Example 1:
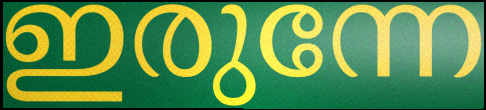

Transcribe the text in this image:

ഇരുന്നേ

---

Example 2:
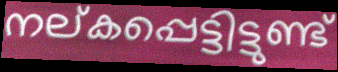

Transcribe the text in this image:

നല്കപ്പെട്ടിട്ടുണ്ട്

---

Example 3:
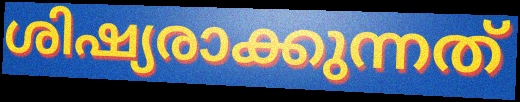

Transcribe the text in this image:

ശിഷ്യരാക്കുന്നത്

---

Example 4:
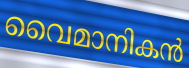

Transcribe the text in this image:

വൈമാനികൻ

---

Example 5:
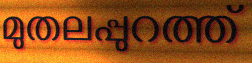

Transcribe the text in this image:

മുതലപ്പുറത്ത്